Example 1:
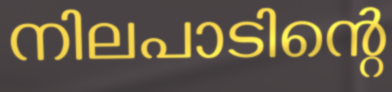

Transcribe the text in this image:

നിലപാടിന്റെ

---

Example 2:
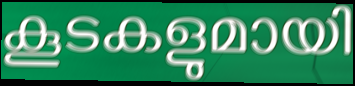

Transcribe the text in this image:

കൂടകളുമായി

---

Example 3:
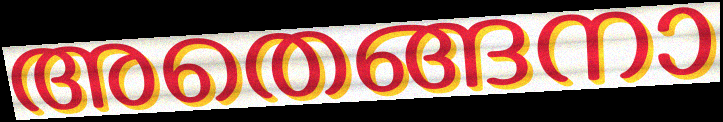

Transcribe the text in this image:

അതെങ്ങനാ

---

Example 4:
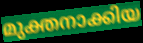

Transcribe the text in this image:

മുക്തനാക്കിയ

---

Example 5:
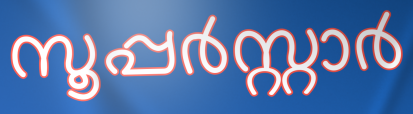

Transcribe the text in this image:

സൂപ്പർസ്റ്റാർ